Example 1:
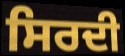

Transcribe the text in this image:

ਸਿਰਦੀ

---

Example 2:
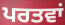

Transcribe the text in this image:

ਪਰਤਵਾਂ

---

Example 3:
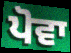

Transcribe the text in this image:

ਪੋਵਾ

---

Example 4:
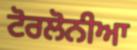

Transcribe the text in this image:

ਟੋਰਲੋਨੀਆ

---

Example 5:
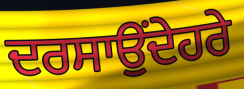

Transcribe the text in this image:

ਦਰਸਾਉਂਦੇਹਰੇ